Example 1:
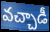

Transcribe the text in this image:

వచ్చాడీ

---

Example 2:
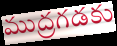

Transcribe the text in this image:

ముద్రగడకు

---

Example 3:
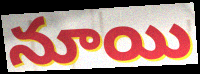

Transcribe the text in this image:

నూయి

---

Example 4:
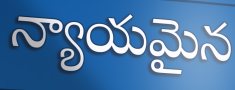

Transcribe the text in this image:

న్యాయమైన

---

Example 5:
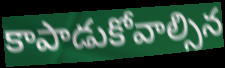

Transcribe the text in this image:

కాపాడుకోవాల్సిన